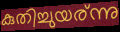
കുതിച്ചുയര്ന്നു